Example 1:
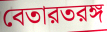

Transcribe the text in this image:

বেতারতরঙ্গ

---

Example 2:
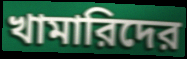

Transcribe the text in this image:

খামারিদের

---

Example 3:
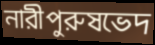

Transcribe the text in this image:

নারীপুরুষভেদ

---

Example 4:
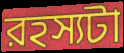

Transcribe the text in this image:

রহস্যটা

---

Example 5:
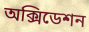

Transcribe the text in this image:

অক্সিডেশন